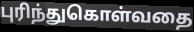
புரிந்துகொள்வதை